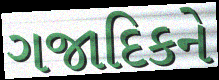
ગજાદિકને